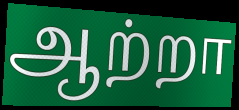
ஆற்றா